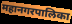
महानगरपालिका